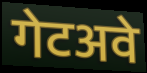
गेटअवे